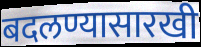
बदलण्यासारखी